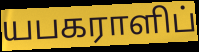
யபகராளிப்